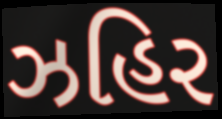
ઝહિર